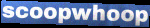
scoopwhoop